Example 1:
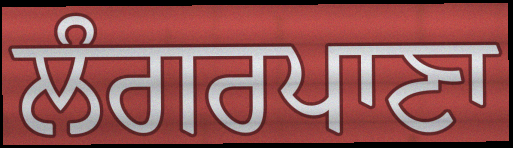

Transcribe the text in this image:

ਲੰਗਰਪਾਣਾ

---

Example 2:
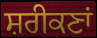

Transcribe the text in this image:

ਸ਼ਰੀਕਣਾਂ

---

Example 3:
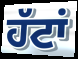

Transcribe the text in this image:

ਹੱਟਾਂ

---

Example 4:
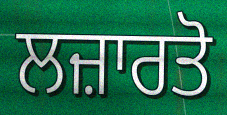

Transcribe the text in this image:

ਲਜ਼ਾਰਤੋ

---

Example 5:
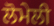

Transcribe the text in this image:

ਲੋਮੇਲੀ